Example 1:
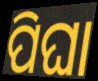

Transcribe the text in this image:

ପିଘା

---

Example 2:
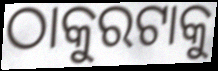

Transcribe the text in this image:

ଠାକୁରଟାକୁ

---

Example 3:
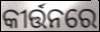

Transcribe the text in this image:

କୀର୍ତ୍ତନରେ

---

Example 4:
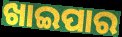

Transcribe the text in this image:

ଖାଇପାର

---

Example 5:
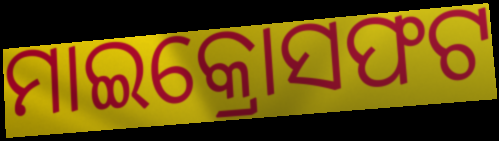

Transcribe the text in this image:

ମାଇକ୍ରୋସଫଟ